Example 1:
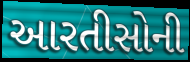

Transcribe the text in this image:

આરતીસોની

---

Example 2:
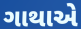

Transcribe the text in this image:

ગાથાએ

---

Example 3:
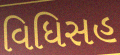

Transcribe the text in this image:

વિધિસહ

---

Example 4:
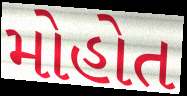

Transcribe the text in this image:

મોહોત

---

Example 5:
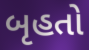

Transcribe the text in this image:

બૃહતો